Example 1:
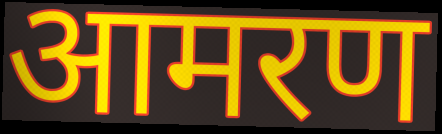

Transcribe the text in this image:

आमरण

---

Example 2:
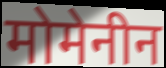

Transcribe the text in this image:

मोमेनीन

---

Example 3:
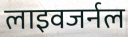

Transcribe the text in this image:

लाइवजर्नल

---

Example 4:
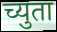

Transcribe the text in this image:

च्युता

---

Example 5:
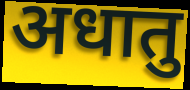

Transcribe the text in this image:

अधातु